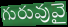
గురువువై